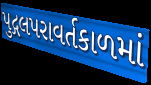
પુદ્ગલપરાવર્તકાળમાં